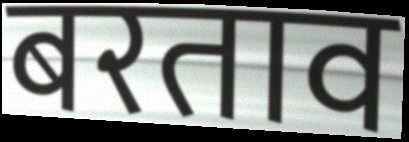
बरताव